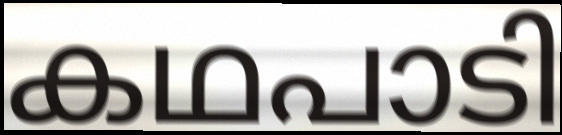
കഥപാടി